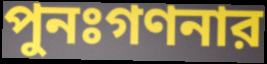
পুনঃগণনার